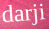
darji